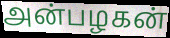
அன்பழகன்